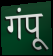
गंपू